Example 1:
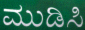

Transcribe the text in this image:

ಮುಡಿಸಿ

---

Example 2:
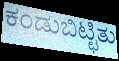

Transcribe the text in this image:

ಕಂಡುಬಿಟ್ಟಿತು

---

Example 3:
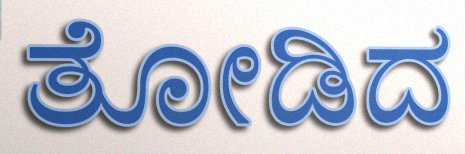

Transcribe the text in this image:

ತೋಡಿದ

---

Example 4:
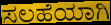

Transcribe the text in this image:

ಸಲಹೆಯಾಗಿ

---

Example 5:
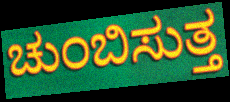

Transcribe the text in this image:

ಚುಂಬಿಸುತ್ತ